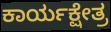
ಕಾರ್ಯಕ್ಷೇತ್ರ